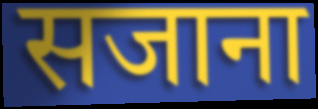
सजाना